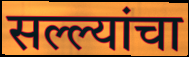
सल्ल्यांचा